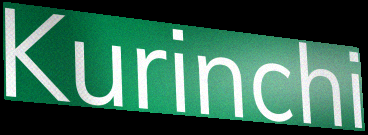
Kurinchi